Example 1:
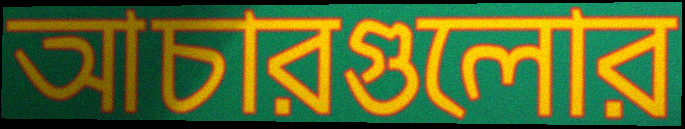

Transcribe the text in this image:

আচারগুলোর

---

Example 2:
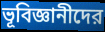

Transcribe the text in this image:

ভূবিজ্ঞানীদের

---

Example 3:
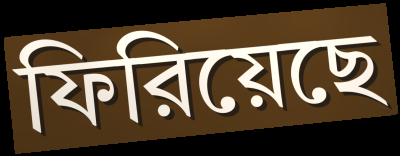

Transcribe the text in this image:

ফিরিয়েছে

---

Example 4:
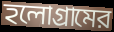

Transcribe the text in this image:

হলোগ্রামের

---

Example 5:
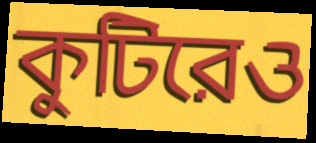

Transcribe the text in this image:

কুটিরেও